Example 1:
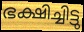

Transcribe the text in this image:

ഭക്ഷിച്ചിട്ടു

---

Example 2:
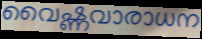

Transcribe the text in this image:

വൈഷ്ണവാരാധന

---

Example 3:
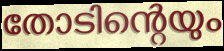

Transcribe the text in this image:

തോടിന്റെയും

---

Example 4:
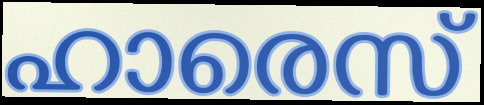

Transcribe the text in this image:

ഹാരെസ്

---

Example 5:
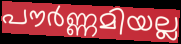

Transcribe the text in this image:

പൗർണ്ണമിയല്ല